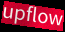
upflow